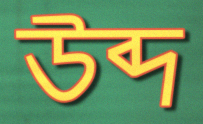
উব্দ